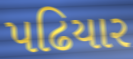
પઢિયાર